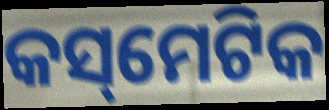
କସ୍‌ମେଟିକ